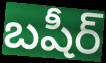
బషీర్